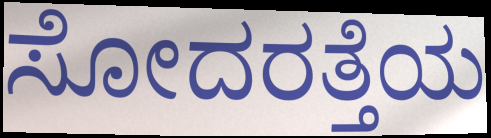
ಸೋದರತ್ತೆಯ